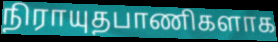
நிராயுதபாணிகளாக